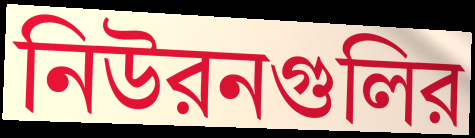
নিউরনগুলির